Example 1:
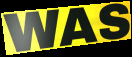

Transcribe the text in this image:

WAS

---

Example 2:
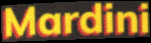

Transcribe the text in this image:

Mardini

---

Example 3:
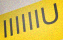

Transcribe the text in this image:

IIIIIIU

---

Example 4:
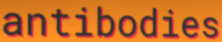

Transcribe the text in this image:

antibodies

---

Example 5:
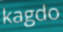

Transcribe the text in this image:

kagdo